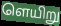
ளெயிறு